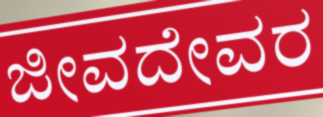
ಜೀವದೇವರ